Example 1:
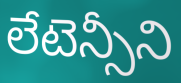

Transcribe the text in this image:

లేటెన్సీని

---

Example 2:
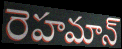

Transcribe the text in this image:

రెహమాన్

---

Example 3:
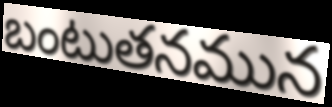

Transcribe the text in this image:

బంటుతనమున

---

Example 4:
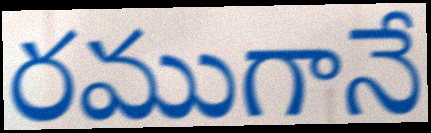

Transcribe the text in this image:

రముగానే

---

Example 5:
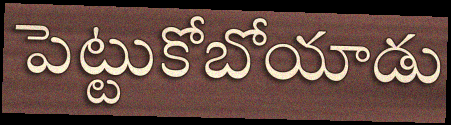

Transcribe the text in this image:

పెట్టుకోబోయాడు